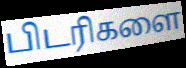
பிடரிகளை